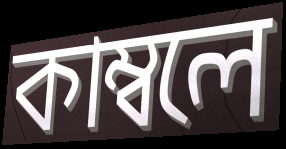
কাম্বলে